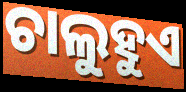
ଚାଲୁହୁଏ